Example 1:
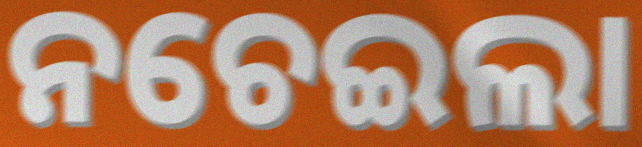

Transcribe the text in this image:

ନଚେଇଲା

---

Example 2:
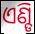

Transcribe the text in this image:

ଏଣ୍ଡି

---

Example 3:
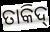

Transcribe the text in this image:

ତାକିଦ୍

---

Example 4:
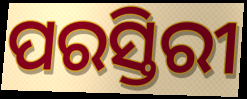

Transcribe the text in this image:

ପରସ୍ତିରୀ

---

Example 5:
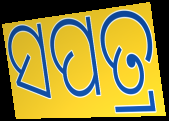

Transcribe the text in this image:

ସପତ୍ର